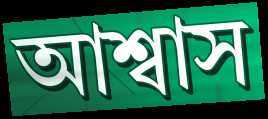
আশ্বাস